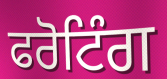
ਫਰੋਟਿੰਗ